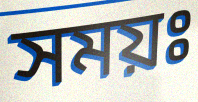
সময়ঃ